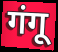
गंगू